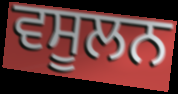
ਵਸੂਲਨ